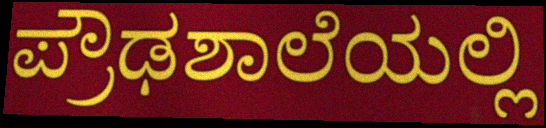
ಪ್ರೌಢಶಾಲೆಯಲ್ಲಿ